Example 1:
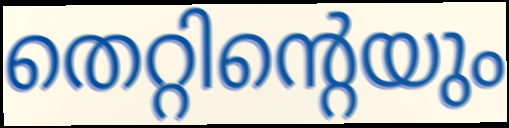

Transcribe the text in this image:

തെറ്റിന്റെയും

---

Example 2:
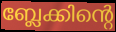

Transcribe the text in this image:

ബ്ലേക്കിന്റെ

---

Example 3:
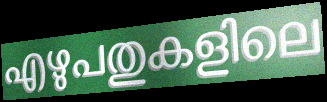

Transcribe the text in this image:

എഴുപതുകളിലെ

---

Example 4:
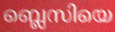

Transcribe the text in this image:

ബ്ലെസിയെ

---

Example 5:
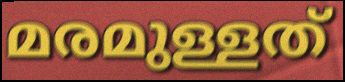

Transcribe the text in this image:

മരമുള്ളത്